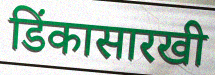
डिंकासारखी